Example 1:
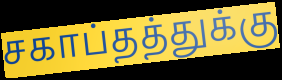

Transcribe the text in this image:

சகாப்தத்துக்கு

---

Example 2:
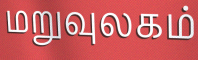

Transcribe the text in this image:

மறுவுலகம்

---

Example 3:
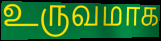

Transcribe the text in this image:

உருவமாக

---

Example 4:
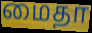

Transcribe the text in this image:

மைதா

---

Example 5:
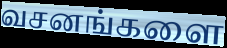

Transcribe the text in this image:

வசனங்களை